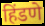
हिंडणे